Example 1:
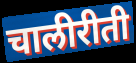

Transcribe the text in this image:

चालीरीती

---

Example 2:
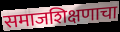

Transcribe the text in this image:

समाजशिक्षणाचा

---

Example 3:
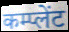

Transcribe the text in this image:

कम्प्लेंट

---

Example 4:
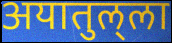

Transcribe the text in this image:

अयातुल्ला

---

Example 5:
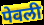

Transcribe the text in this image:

पेवली